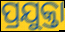
ପ୍ରଯୁକ୍ତା